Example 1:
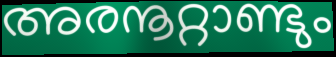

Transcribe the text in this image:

അരനൂറ്റാണ്ടും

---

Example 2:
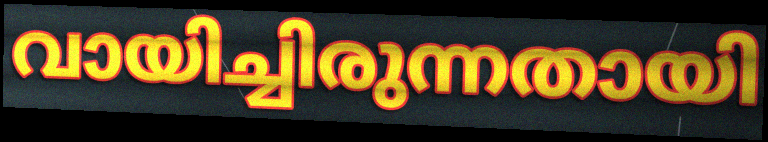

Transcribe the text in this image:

വായിച്ചിരുന്നതായി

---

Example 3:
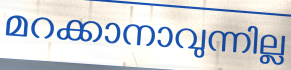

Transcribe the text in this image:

മറക്കാനാവുന്നില്ല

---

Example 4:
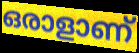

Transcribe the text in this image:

ഒരാളാണ്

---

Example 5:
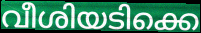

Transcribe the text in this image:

വീശിയടിക്കെ